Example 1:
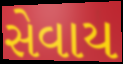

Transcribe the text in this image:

સેવાય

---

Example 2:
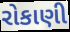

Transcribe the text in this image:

રોકાણી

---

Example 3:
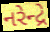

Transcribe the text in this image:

નરેન્દ્રે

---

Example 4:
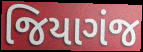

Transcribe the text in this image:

જિયાગંજ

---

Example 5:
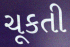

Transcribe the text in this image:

ચૂકતી